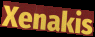
Xenakis